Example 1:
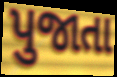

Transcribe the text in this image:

પુજાતા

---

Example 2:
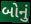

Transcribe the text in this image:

બોનું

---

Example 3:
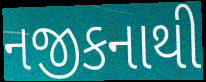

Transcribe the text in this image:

નજીકનાથી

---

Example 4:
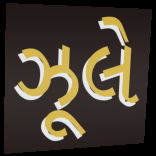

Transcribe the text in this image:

ઝૂલે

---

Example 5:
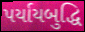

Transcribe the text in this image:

પર્યાયબુદ્ધિ